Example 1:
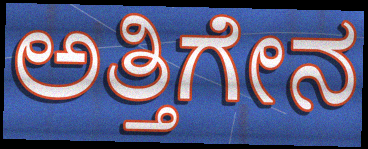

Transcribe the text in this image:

ಅತ್ತಿಗೇನ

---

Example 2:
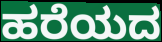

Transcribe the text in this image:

ಹರೆಯದ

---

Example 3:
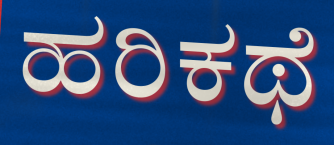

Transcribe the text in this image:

ಹರಿಕಥೆ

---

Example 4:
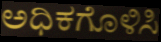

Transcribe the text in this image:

ಅಧಿಕಗೊಳಿಸಿ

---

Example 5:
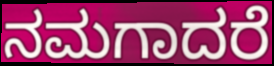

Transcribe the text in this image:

ನಮಗಾದರೆ